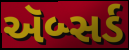
ઍબ્સર્ડ